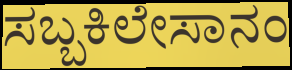
ಸಬ್ಬಕಿಲೇಸಾನಂ